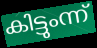
കിട്ടുംന്ന്